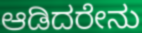
ಆಡಿದರೇನು